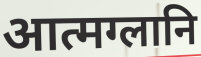
आत्मग्लानि